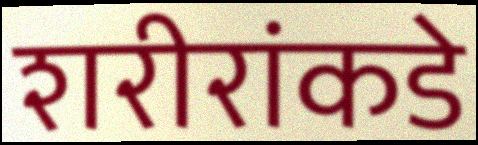
शरीरांकडे